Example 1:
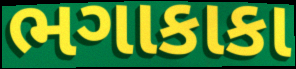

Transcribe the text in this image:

ભગાકાકા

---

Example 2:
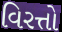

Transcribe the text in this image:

વિરત્તો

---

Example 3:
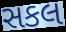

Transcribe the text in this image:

સકલ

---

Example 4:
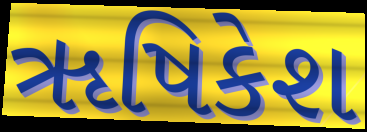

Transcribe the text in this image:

ૠષિકેશ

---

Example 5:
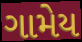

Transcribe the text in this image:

ગામેય